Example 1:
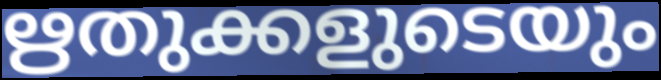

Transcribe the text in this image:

ഋതുക്കളുടെയും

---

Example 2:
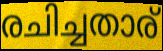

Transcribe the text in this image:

രചിച്ചതാര്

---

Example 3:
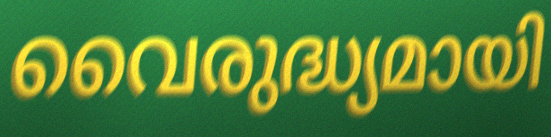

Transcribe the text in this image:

വൈരുദ്ധ്യമായി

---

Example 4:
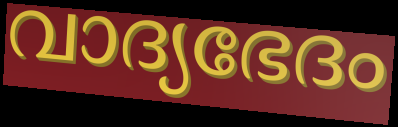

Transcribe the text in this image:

വാദ്യഭേദം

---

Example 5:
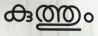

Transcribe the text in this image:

കുത്തും